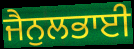
ਜੈਨੁਲਭਾਈ